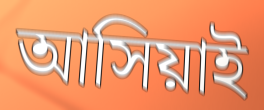
আসিয়াই